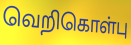
வெறிகொள்பு